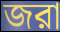
জরা